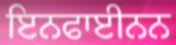
ਇਨਫਾਈਨਨ